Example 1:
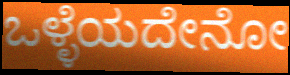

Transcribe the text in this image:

ಒಳ್ಳೆಯದೇನೋ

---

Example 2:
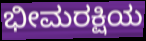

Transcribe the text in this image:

ಭೀಮರಕ್ಷಿಯ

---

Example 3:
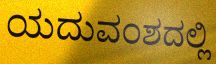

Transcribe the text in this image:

ಯದುವಂಶದಲ್ಲಿ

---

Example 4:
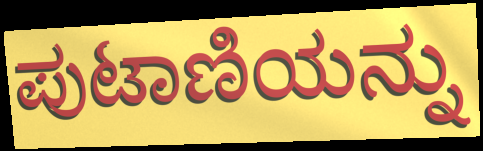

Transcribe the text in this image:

ಪುಟಾಣಿಯನ್ನು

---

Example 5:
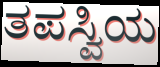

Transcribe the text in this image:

ತಪಸ್ವಿಯ